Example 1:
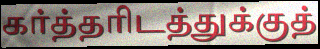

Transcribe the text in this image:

கர்த்தரிடத்துக்குத்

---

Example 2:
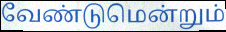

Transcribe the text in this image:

வேண்டுமென்றும்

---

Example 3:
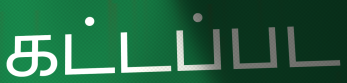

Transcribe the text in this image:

கட்டப்பட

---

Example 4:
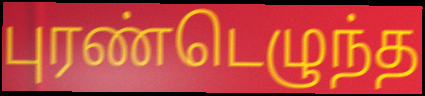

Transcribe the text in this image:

புரண்டெழுந்த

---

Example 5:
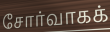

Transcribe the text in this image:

சோர்வாகக்